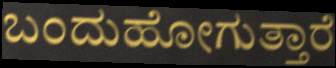
ಬಂದುಹೋಗುತ್ತಾರೆ